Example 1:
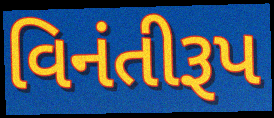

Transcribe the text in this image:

વિનંતીરૂપ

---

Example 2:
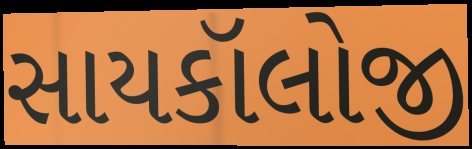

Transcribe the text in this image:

સાયકૉલોજી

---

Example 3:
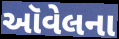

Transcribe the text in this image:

ઑવેલના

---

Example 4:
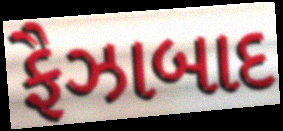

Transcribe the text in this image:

ફૈઝાબાદ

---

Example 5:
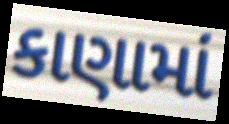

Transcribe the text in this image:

કાણામાં